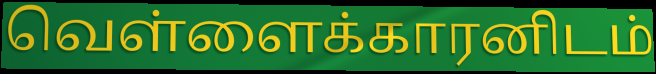
வெள்ளைக்காரனிடம்